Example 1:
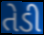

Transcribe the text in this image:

તેડી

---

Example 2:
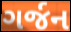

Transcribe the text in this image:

ગર્જન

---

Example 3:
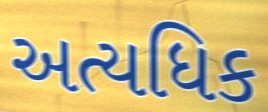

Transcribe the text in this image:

અત્યધિક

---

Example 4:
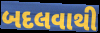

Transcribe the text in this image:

બદલવાથી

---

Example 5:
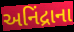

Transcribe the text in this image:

અનિંદ્રાના